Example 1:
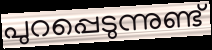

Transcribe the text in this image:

പുറപ്പെടുന്നുണ്ട്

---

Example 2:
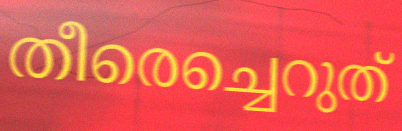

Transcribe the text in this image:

തീരെച്ചെറുത്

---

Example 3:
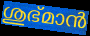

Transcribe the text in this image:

ശുഭ്മാൻ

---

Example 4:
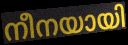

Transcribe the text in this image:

നീനയായി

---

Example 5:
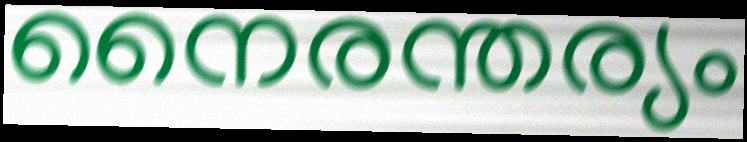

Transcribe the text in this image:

നൈരന്തര്യം